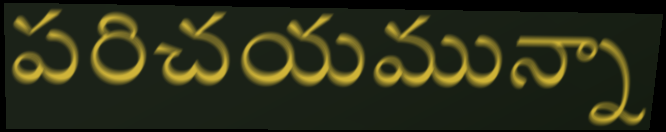
పరిచయమున్నా